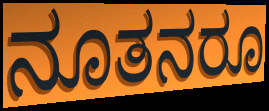
ನೂತನರೂ